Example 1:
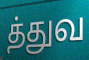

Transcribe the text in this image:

த்துவ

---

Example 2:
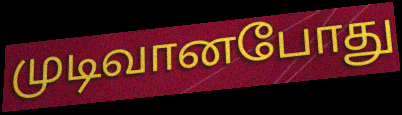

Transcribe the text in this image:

முடிவானபோது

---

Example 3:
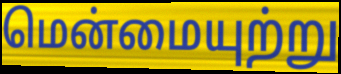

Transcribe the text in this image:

மென்மையுற்று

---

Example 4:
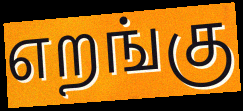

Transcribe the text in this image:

எறங்கு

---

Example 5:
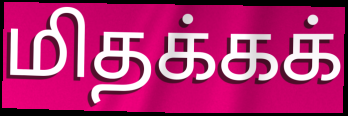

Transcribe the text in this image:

மிதக்கக்